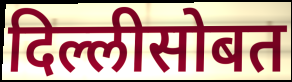
दिल्लीसोबत